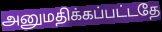
அனுமதிக்கப்பட்டதே